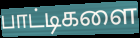
பாட்டிகளை